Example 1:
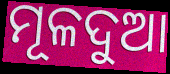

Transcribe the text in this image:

ମୂଳଦୁଆ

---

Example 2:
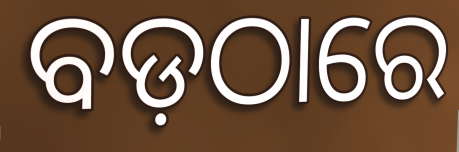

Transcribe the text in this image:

ବଡ଼ଠାରେ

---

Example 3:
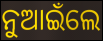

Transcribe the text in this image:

ନୁଆଇଁଲେ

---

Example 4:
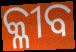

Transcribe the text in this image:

କ୍ଳୀବ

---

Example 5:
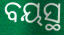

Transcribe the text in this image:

ବୟସ୍ଥ